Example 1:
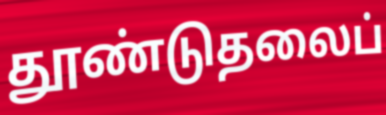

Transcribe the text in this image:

தூண்டுதலைப்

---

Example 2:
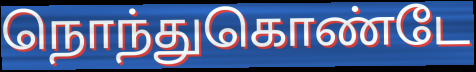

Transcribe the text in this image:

நொந்துகொண்டே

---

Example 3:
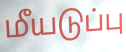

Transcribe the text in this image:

மீயடுப்பு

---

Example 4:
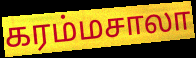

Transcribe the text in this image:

கரம்மசாலா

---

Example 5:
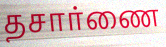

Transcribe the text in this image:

தசார்ணை